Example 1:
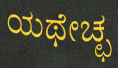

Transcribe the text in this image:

ಯಥೇಚ್ಛ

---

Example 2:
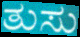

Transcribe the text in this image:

ತುಸು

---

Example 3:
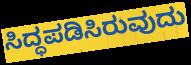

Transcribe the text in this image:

ಸಿದ್ಧಪಡಿಸಿರುವುದು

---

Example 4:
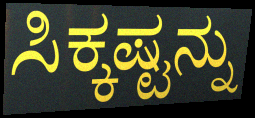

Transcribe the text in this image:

ಸಿಕ್ಕಷ್ಟನ್ನು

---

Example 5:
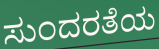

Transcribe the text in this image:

ಸುಂದರತೆಯ